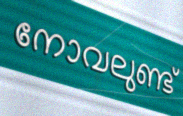
നോവലുണ്ട്